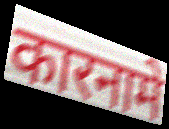
कारनामे